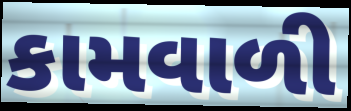
કામવાળી